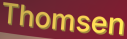
Thomsen